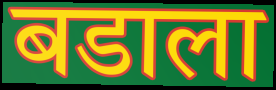
बडाला